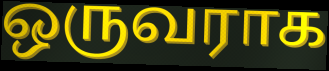
ஒருவராக